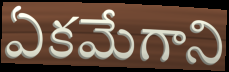
ఏకమేగాని